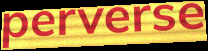
perverse